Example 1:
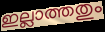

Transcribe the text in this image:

ഇല്ലാത്തതും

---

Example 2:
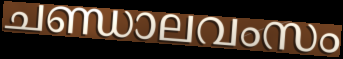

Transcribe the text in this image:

ചണ്ഡാലവംസം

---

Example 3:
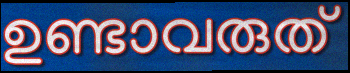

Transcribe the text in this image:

ഉണ്ടാവരുത്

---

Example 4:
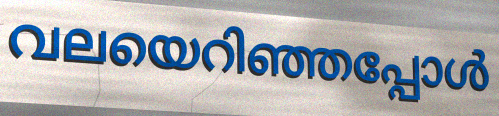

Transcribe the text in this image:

വലയെറിഞ്ഞപ്പോൾ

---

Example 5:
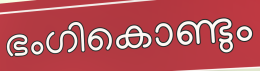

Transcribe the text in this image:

ഭംഗികൊണ്ടും